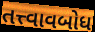
તત્ત્વાવબોધ